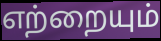
எற்றையும்